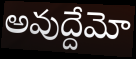
అవుద్దేమో